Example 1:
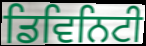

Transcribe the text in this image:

ਡਿਵਿਨਿਟੀ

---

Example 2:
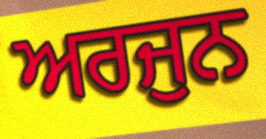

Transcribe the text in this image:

ਅਰਜੁਨ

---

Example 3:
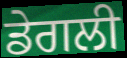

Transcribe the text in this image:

ਡੇਗਲੀ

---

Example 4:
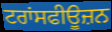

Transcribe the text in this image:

ਟਰਾਂਸਫੀਊਜ਼ਨ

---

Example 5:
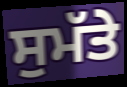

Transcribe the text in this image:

ਸੁਮੱਤੇ